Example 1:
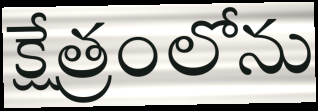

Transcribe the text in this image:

క్షేత్రంలోను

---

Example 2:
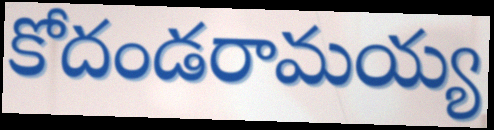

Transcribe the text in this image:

కోదండరామయ్య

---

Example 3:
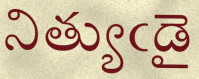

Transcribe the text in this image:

నిత్యుఁడై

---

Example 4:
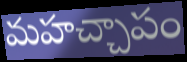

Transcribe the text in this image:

మహచ్చాపం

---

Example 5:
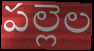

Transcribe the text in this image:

పల్లెల